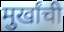
मुर्खांची